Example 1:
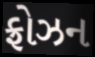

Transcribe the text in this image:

ફ્રોઝન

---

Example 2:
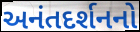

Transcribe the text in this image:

અનંતદર્શનનો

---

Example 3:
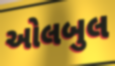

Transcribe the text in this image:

ઓલબુલ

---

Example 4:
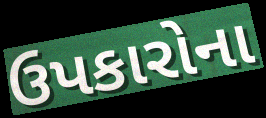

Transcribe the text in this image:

ઉપકારોના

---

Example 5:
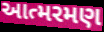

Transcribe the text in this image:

આત્મરમણ